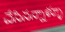
చేసినన్నాళ్ళూ